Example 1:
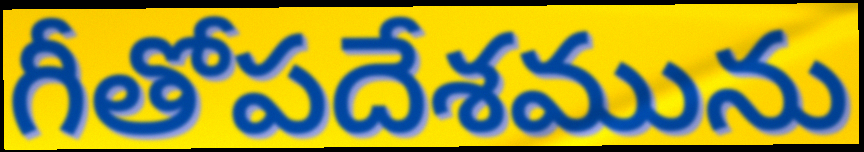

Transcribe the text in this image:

గీతోపదేశమును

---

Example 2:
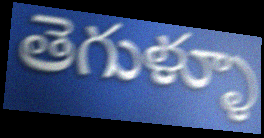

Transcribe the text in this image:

తెగుళ్ళూ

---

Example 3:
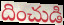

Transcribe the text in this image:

దించుడి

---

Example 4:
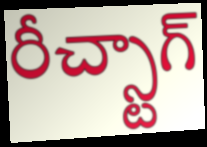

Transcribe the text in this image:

రీచ్స్టాగ్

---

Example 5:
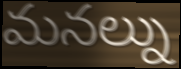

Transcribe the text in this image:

మనల్ను